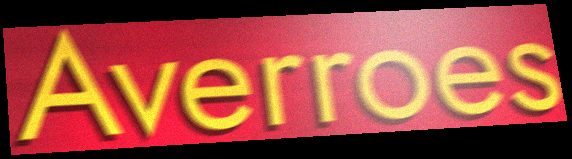
Averroes